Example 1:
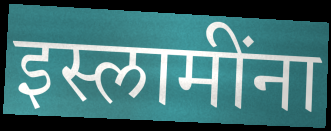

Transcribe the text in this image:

इस्लामींना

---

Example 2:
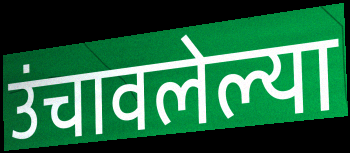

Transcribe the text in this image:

उंचावलेल्या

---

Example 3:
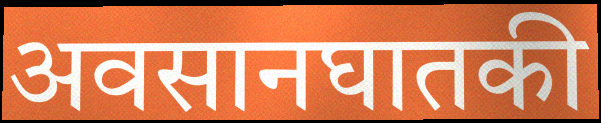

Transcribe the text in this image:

अवसानघातकी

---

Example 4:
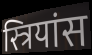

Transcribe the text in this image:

स्त्रियांस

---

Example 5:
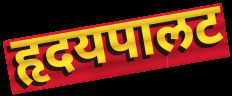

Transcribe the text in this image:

हृदयपालट